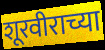
शूरवीराच्या